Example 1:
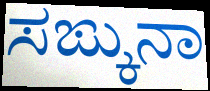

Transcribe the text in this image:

ಸಙ್ಕುನಾ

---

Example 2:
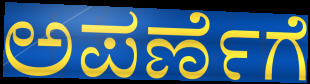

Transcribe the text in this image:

ಅಪರ್ಣೆಗೆ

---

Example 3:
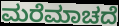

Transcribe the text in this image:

ಮರೆಮಾಚದೆ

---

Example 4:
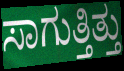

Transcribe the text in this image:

ಸಾಗುತ್ತಿತ್ತು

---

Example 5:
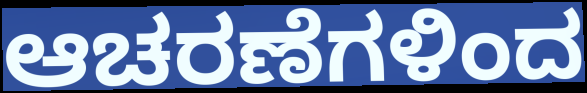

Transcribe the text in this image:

ಆಚರಣೆಗಳಿಂದ